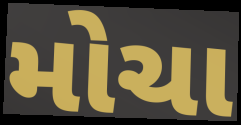
મોચા